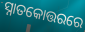
ସ୍ନାତକୋତ୍ତରରେ